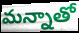
మన్నాతో